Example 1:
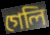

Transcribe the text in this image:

গেলি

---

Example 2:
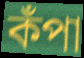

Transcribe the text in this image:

কঁপা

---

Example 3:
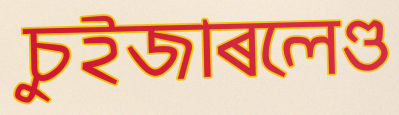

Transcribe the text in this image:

চুইজাৰলেণ্ড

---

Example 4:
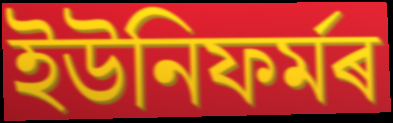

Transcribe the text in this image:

ইউনিফৰ্মৰ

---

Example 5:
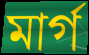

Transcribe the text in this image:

মাৰ্গ